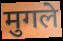
मुगले